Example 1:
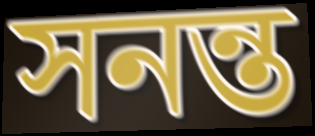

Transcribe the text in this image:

সনন্ত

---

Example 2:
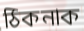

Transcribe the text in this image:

ঠিকনাক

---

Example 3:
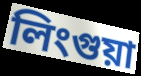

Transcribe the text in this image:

লিংগুয়া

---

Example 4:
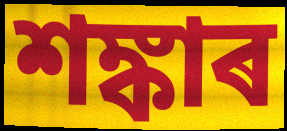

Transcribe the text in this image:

শঙ্কাৰ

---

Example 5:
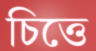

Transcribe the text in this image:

চিত্তে